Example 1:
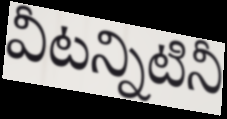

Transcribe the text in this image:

వీటన్నిటినీ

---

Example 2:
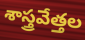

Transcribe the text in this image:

శాస్త్రవేత్తల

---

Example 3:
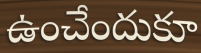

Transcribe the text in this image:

ఉంచేందుకూ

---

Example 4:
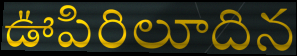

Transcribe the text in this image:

ఊపిరిలూదిన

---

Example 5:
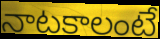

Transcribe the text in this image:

నాటకాలంటే